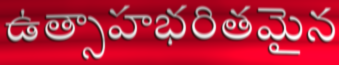
ఉత్సాహభరితమైన